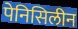
पेनिसिलीन